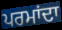
ਪਰਮਾਂਦਾ